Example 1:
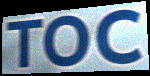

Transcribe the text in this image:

TOC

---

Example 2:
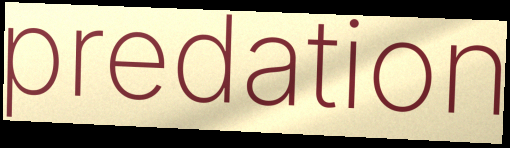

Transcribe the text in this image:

predation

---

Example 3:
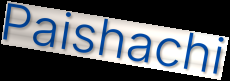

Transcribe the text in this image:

Paishachi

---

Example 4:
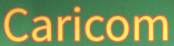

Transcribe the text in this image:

Caricom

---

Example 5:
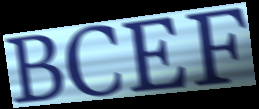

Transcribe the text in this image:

BCEF